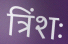
त्रिंशः